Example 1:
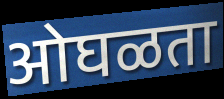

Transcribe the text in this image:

ओघळता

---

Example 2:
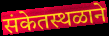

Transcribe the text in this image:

संकेतस्थळाने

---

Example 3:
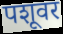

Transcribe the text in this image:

पशूवर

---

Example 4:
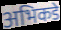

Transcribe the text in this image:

अभिकडे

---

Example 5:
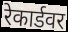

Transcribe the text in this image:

रेकार्डवर